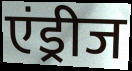
एंड्रीज